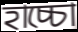
হাচ্চো